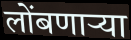
लोंबणार्‍या